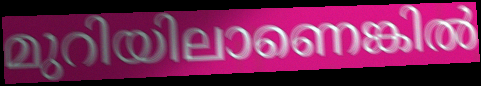
മുറിയിലാണെങ്കിൽ